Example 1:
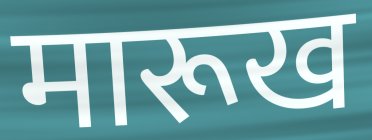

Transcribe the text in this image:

मारूख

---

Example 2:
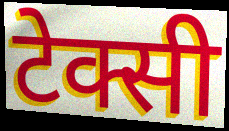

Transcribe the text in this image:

टेक्सी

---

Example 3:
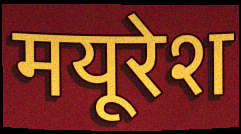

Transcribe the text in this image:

मयूरेश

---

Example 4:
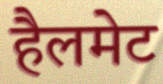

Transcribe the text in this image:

हैलमेट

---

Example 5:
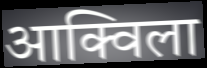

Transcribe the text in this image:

आक्विला